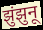
झुंझुनू